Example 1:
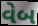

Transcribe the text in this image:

વેબ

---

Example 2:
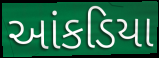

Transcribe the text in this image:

આંકડિયા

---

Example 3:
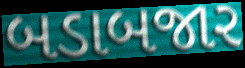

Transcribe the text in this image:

બડાબજાર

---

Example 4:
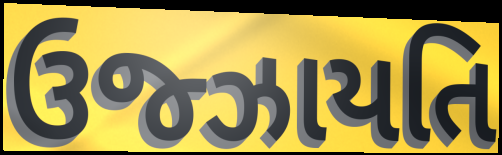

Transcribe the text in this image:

ઉજ્ઝાયતિ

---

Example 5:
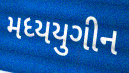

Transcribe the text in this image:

મધ્યયુગીન